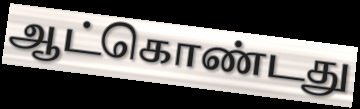
ஆட்கொண்டது